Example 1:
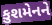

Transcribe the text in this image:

કુશમેનને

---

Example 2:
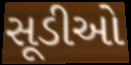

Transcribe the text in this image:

સૂડીઓ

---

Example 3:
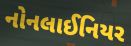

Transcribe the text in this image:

નોનલાઈનિયર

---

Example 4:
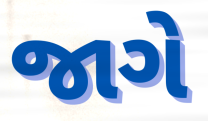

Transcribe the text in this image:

જાગે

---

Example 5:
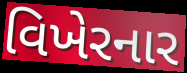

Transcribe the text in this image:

વિખેરનાર